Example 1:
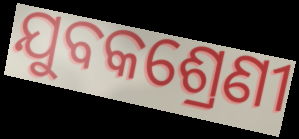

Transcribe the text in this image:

ଯୁବକଶ୍ରେଣୀ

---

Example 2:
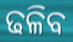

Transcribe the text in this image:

ଢଳିବ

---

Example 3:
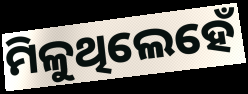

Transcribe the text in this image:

ମିଳୁଥିଲେହେଁ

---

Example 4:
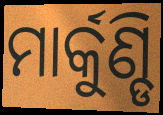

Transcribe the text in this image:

ମାର୍କୁଣ୍ଡି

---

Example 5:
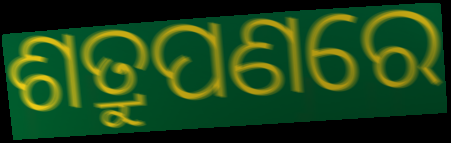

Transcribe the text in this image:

ଶତ୍ରୁପଣରେ